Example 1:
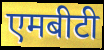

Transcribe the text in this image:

एमबीटी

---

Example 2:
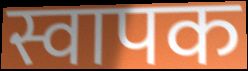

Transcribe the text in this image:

स्‍वापक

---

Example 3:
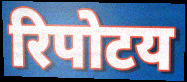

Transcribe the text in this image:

रिपोटय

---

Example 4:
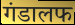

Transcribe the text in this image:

गंडालफ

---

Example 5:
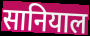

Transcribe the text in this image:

सानियाल